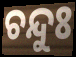
ଚନ୍ଦୁଃ